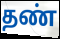
தண்